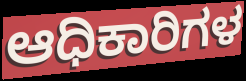
ಆಧಿಕಾರಿಗಳ